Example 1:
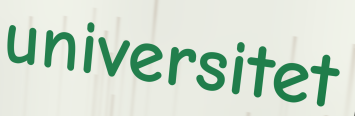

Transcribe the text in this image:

universitet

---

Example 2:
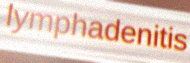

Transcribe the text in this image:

lymphadenitis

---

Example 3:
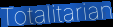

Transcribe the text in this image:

Totalitarian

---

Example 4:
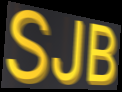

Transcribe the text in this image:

SJB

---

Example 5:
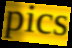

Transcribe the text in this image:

pics